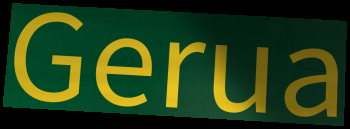
Gerua